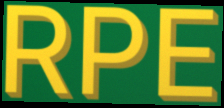
RPE